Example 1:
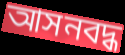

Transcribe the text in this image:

আসনবদ্ধ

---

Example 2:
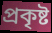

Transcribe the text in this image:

প্রকৃষ্ট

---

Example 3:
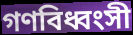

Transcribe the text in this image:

গণবিধ্বংসী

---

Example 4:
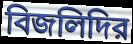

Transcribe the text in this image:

বিজলিদির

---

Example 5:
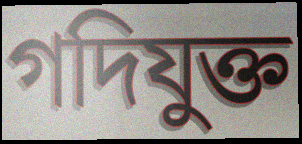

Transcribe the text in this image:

গদিযুক্ত